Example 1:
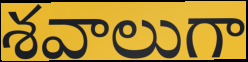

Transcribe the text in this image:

శవాలుగా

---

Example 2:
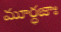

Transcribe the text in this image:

మూర్ధజాః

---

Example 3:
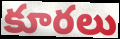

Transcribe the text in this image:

కూరలు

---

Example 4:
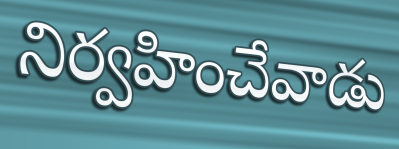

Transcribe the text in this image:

నిర్వహించేవాడు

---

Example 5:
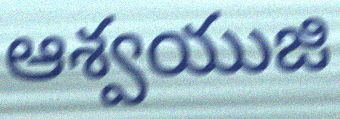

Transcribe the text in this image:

ఆశ్వయుజి